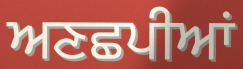
ਅਣਛਪੀਆਂ